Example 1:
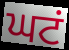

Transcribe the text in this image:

ਘਟਂ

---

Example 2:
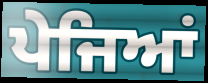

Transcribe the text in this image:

ਪੇਜਿਆਂ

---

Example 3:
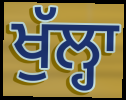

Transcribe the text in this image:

ਖੁੱਲ੍ਹਾ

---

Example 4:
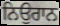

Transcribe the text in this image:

ਨਿਉਰਾਨ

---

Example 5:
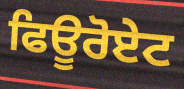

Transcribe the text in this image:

ਫਿਊਰੋਏਟ